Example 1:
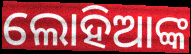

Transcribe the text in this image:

ଲୋହିଆଙ୍କ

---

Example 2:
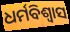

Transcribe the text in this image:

ଧର୍ମବିଶ୍ବାସ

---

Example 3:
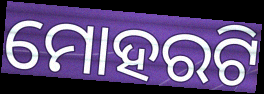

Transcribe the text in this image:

ମୋହରଟି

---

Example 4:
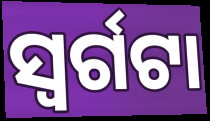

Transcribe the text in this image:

ସ୍ୱର୍ଗଟା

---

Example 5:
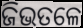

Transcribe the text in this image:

ଜିଭତଳେ